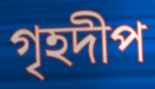
গৃহদীপ